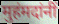
मुहंमदांनीं